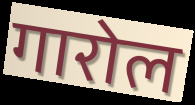
गारोल